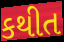
કથીત